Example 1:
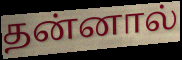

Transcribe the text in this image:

தன்னால்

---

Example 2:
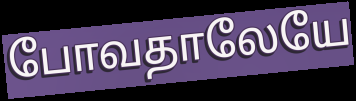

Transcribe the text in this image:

போவதாலேயே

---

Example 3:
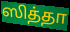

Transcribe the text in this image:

ஸித்தா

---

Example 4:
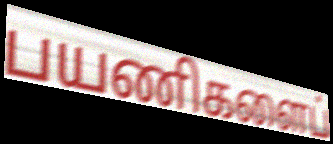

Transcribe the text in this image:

பயணிகளைப்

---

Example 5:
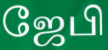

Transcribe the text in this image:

ஜேபி